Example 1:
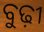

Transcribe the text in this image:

ବୁଢ଼ୀ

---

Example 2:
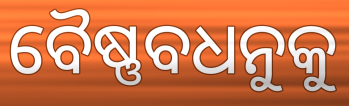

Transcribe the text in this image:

ବୈଷ୍ଣବଧନୁକୁ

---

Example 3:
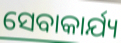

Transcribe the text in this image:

ସେବାକାର୍ଯ୍ୟ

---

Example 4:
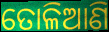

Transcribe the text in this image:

ତୋଳିଆଣି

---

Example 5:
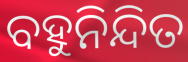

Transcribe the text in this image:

ବହୁନିନ୍ଦିତ